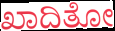
ಖಾದಿತೋ